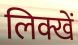
लिक्खें